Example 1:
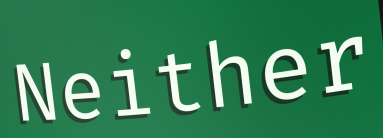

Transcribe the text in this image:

Neither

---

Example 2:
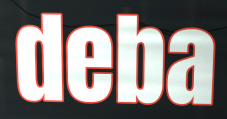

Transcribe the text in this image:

deba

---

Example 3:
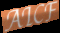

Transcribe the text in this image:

AICF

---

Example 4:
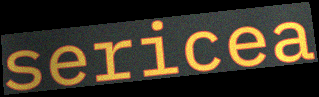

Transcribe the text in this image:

sericea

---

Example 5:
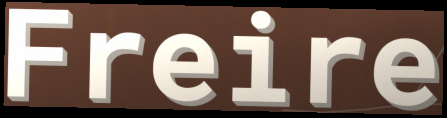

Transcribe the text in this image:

Freire